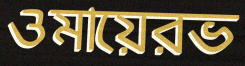
ওমায়েরভ